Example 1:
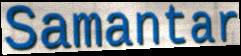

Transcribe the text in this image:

Samantar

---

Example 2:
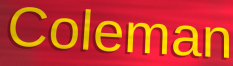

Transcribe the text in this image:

Coleman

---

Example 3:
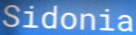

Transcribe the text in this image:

Sidonia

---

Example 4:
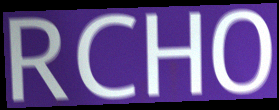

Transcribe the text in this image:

RCHO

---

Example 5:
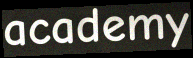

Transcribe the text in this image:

academy